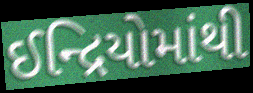
ઈન્દ્રિયોમાંથી